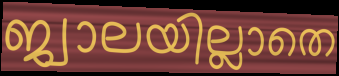
ജ്വാലയില്ലാതെ